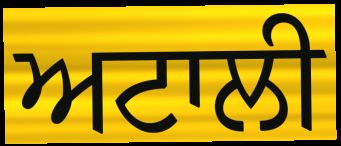
ਅਟਾਲੀ